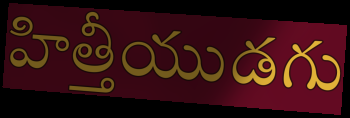
హిత్తీయుడగు